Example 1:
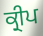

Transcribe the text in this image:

ਕ੍ਰੀਪ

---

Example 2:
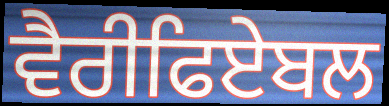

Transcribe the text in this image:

ਵੈਰੀਫਿਏਬਲ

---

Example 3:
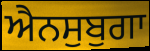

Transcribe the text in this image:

ਐਨਸੁਬੁਗਾ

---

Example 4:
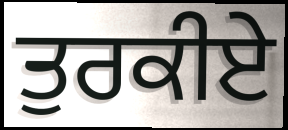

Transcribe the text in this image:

ਤੁਰਕੀਏ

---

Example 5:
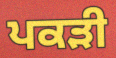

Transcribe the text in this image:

ਪਕੜੀ